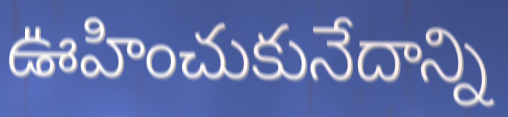
ఊహించుకునేదాన్ని